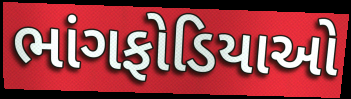
ભાંગફોડિયાઓ